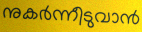
നുകർന്നീടുവാൻ